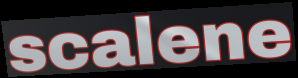
scalene